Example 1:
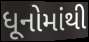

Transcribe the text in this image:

ધૂનોમાંથી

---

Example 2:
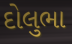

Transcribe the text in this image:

દોલુભા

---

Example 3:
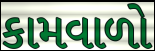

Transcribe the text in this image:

કામવાળો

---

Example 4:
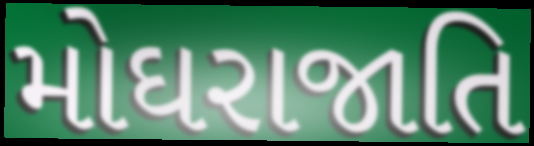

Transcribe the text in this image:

મોઘરાજાતિ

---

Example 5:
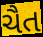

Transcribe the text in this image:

ચૈત